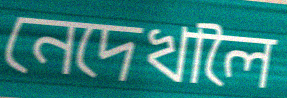
নেদেখালৈ